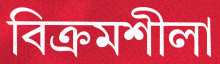
বিক্রমশীলা